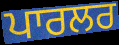
ਪਾਰਲਰ